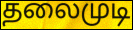
தலைமுடி